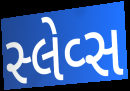
સ્લેવ્સ